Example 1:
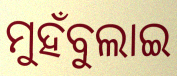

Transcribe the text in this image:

ମୁହଁବୁଲାଇ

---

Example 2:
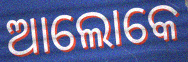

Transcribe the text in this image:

ଆଲୋକେ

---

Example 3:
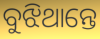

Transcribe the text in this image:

ବୁଝିଥାନ୍ତେ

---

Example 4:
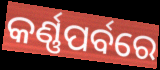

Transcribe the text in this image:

କର୍ଣ୍ଣପର୍ବରେ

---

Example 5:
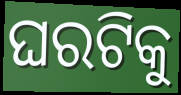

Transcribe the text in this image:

ଘରଟିକୁ